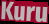
Kuru